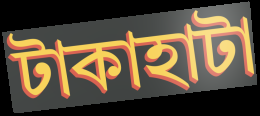
টাকাহাটা